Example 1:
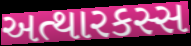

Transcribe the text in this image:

અત્થારકસ્સ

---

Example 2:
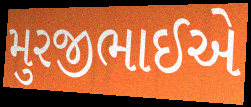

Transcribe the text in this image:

મુરજીભાઈએ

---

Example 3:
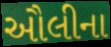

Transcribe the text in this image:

ઔલીના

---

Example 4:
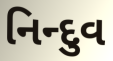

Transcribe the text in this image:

નિન્દુવ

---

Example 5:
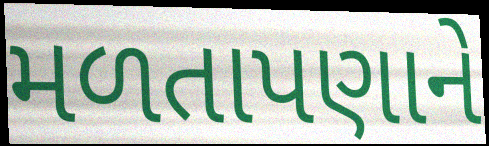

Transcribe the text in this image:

મળતાપણાને